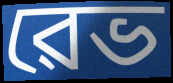
ৱেভ